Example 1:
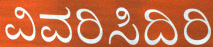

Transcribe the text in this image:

ವಿವರಿಸಿದಿರಿ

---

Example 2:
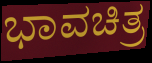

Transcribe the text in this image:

ಭಾವಚಿತ್ರ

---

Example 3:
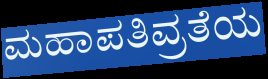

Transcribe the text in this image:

ಮಹಾಪತಿವ್ರತೆಯ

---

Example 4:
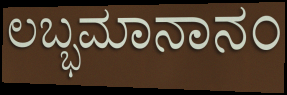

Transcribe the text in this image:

ಲಬ್ಭಮಾನಾನಂ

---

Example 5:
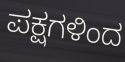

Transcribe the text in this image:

ಪಕ್ಷಗಳಿಂದ